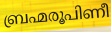
ബ്രഹ്മരൂപിണീ